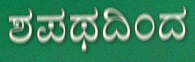
ಶಪಥದಿಂದ